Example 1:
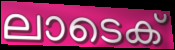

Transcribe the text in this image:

ലാടെക്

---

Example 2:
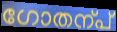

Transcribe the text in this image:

ഗോതന്പ്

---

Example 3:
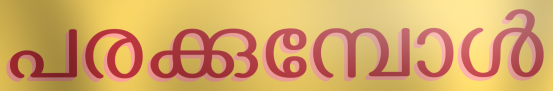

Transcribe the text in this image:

പരക്കുമ്പോൾ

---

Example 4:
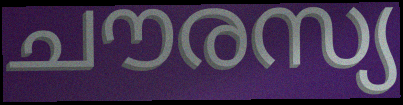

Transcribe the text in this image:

ചൗരസ്യ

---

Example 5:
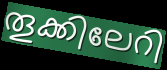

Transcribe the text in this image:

തൂക്കിലേറി